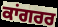
ਕਾਂਗਰਰ